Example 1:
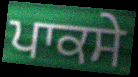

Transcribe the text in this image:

ਪਾਕਸੇ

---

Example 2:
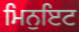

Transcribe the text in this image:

ਮਿਨੁਇਟ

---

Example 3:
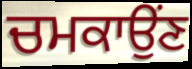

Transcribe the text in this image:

ਚਮਕਾਉਂਣ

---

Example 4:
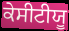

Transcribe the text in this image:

ਕੇਸੀਟੀਯੂ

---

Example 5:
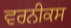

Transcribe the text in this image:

ਵਰਨੀਕਸ